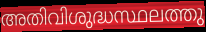
അതിവിശുദ്ധസ്ഥലത്തു